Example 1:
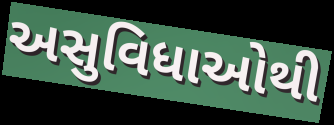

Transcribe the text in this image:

અસુવિધાઓથી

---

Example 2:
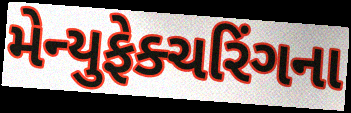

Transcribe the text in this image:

મેન્યુફેક્ચરિંગના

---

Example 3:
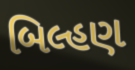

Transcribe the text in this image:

બિલ્હણ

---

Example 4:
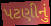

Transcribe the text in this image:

પટણીનું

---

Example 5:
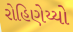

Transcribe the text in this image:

રોહિણેય્યો